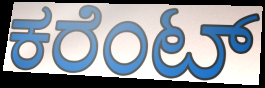
ಕರೆಂಟ್